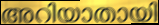
അറിയാതായി